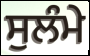
ਸੁਲੰਮੇ